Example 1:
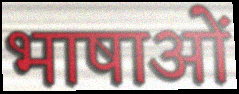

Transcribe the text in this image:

भाषाओें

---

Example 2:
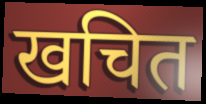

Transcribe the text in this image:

खचित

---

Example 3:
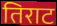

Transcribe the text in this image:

तिराट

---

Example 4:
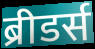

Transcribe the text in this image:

ब्रीडर्स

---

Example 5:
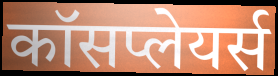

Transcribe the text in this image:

कॉसप्लेयर्स